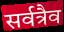
सर्वत्रैव